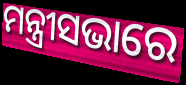
ମନ୍ତ୍ରୀସଭାରେ